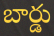
బార్డు